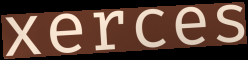
xerces